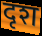
दृश